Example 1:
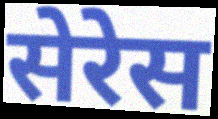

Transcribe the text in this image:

सेरेस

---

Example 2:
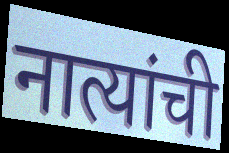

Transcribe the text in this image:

नात्यांची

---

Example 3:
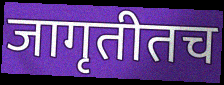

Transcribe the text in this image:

जागृतीतच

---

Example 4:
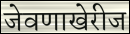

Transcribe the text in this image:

जेवणाखेरीज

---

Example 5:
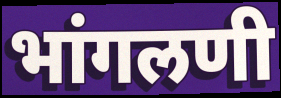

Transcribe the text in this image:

भांगलणी